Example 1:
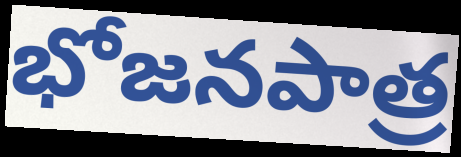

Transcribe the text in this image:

భోజనపాత్ర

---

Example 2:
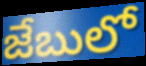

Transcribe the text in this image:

జేబులో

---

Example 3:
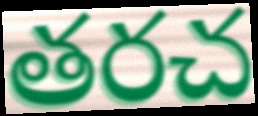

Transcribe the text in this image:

తరచ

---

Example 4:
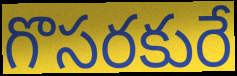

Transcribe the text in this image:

గొసరకురే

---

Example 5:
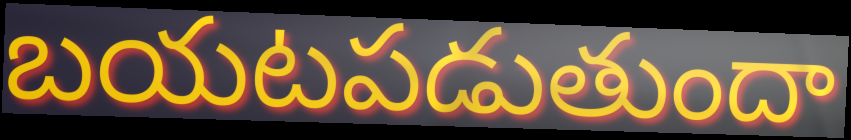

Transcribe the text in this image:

బయటపడుతుందా